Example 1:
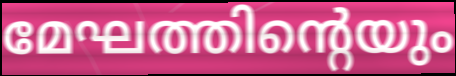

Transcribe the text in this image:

മേഘത്തിന്റെയും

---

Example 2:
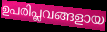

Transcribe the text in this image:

ഉപരിപ്ലവങ്ങളായ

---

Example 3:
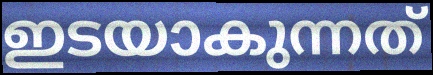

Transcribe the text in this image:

ഇടയാകുന്നത്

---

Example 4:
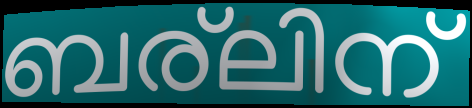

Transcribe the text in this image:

ബര്ലിന്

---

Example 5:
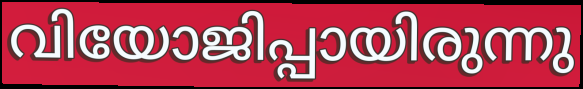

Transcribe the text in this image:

വിയോജിപ്പായിരുന്നു